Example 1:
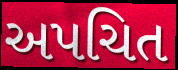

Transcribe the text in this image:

અપચિત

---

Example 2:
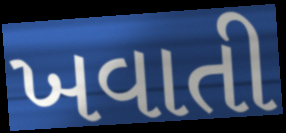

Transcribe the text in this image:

ખવાતી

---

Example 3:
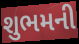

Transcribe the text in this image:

શુભમની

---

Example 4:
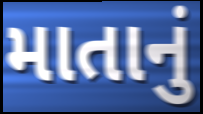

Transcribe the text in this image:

માતાનું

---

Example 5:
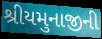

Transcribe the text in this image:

શ્રીયમુનાજીની